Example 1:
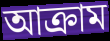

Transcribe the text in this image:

আক্রাম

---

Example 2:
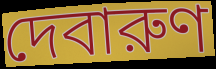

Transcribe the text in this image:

দেবারুণ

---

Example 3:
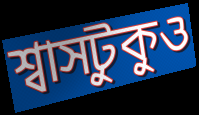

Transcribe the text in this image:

শ্বাসটুকুও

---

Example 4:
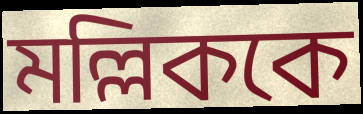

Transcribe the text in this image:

মল্লিককে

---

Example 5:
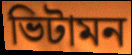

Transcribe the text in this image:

ভিটামন